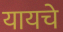
यायचे